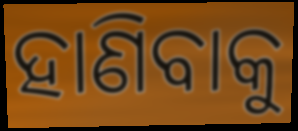
ହାଣିବାକୁ